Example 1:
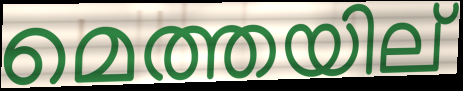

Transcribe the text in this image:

മെത്തയില്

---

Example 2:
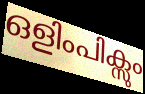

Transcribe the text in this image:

ഒളിംപിക്സും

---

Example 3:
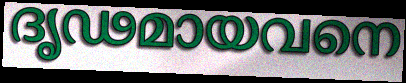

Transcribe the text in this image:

ദൃഢമായവനെ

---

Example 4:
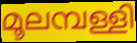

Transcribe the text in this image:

മൂലമ്പള്ളി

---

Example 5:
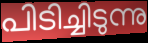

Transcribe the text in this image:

പിടിച്ചിടുന്നു